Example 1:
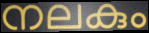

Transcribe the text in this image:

നലകും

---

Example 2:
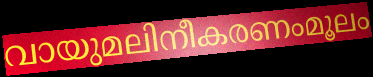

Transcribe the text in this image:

വായുമലിനീകരണംമൂലം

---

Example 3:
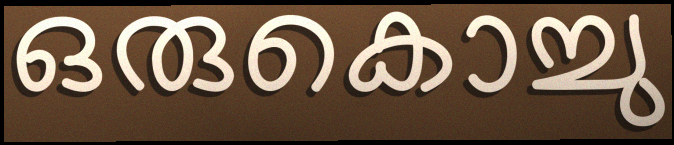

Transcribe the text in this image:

ഒരുകൊച്ചു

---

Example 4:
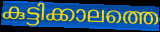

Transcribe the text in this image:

കുട്ടിക്കാലത്തെ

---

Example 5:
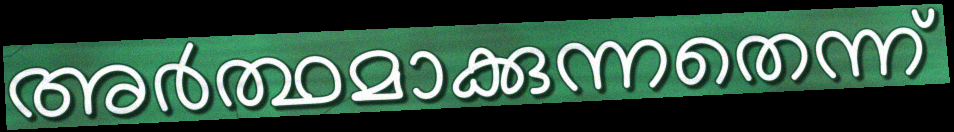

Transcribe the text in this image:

അർത്ഥമാക്കുന്നതെന്ന്